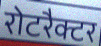
रोटरैक्टर